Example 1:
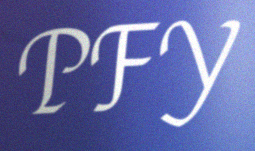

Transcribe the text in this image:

PFY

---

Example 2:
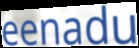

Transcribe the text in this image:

eenadu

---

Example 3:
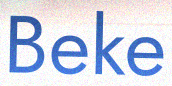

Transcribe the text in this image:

Beke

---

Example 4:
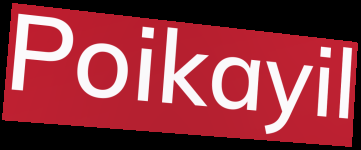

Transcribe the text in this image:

Poikayil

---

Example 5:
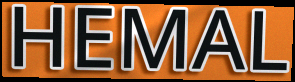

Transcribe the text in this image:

HEMAL